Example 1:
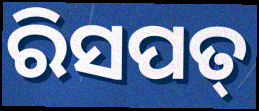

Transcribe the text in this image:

ରିସପତ୍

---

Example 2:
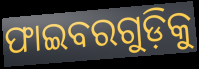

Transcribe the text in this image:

ଫାଇବରଗୁଡ଼ିକୁ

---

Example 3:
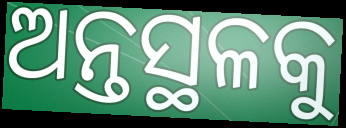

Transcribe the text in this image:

ଅନ୍ତସ୍ଥଳକୁ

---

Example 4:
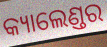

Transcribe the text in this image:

କ୍ୟାଲେଣ୍ଡର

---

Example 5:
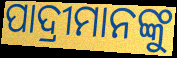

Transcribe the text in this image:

ପାଦ୍ରୀମାନଙ୍କୁ